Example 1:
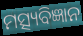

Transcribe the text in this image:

ମତ୍ସ୍ୟବିଜ୍ଞାନ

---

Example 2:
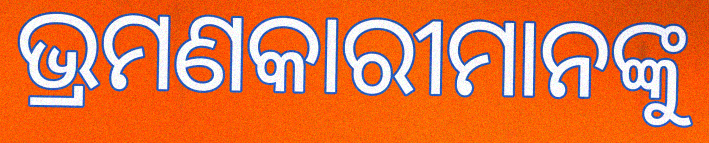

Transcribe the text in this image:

ଭ୍ରମଣକାରୀମାନଙ୍କୁ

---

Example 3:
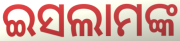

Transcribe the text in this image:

ଇସଲାମଙ୍କ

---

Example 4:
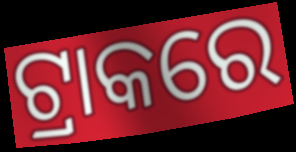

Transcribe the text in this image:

ଟ୍ରାକରେ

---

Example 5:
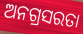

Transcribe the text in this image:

ଅନଗ୍ରସରତା